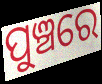
ପୁଞ୍ଚରେ